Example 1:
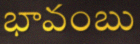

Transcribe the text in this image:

భావంబు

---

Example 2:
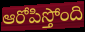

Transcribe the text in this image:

ఆరోపిస్తోంది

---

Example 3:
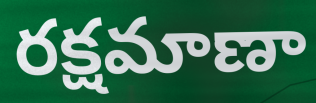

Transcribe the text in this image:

రక్షమాణా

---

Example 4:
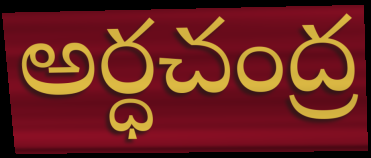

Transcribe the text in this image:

అర్ధచంద్ర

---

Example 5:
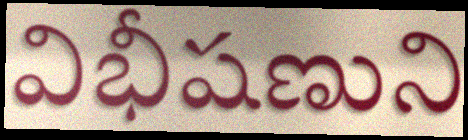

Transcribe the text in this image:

విభీషణుని